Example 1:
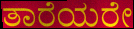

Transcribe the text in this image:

ತಾರೆಯರೇ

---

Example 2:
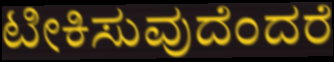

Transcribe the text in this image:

ಟೀಕಿಸುವುದೆಂದರೆ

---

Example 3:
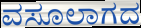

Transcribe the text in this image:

ವಸೂಲಾಗದ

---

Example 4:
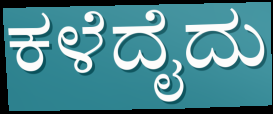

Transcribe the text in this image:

ಕಳೆದೈದು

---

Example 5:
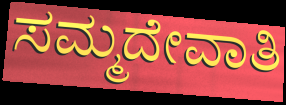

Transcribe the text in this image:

ಸಮ್ಮದೇವಾತಿ